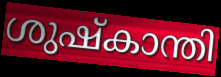
ശുഷ്കാന്തി